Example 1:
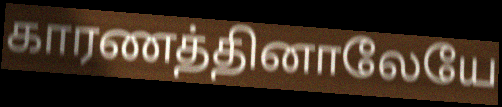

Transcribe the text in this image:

காரணத்தினாலேயே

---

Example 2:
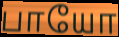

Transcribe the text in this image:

பாயோ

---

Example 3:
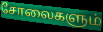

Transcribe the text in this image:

சோலைகளும்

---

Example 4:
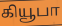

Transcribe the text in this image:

கியூபா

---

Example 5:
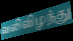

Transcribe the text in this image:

வலிவிழந்து